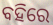
ବହିରେ